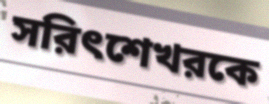
সরিৎশেখরকে